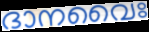
ദാനവൈഃ